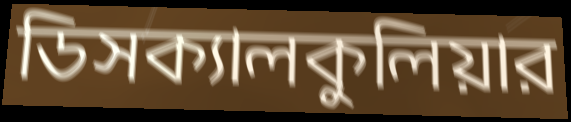
ডিসক্যালকুলিয়ার